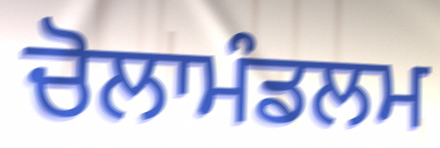
ਚੋਲਾਮੰਡਲਮ